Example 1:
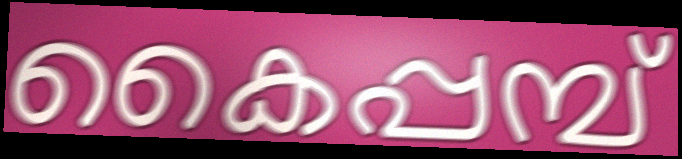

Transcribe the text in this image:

കൈപ്പമ്പ്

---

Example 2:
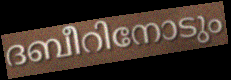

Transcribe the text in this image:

ദബീറിനോടും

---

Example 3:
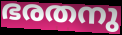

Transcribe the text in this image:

ഭരതനു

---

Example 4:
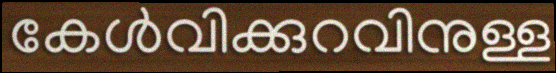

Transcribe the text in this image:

കേൾവിക്കുറവിനുള്ള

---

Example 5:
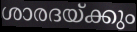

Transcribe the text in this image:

ശാരദയ്ക്കും